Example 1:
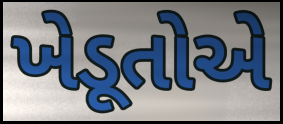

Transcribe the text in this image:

ખેડૂતોએ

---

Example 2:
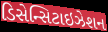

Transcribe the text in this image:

ડિસેન્સિટાઇઝેશન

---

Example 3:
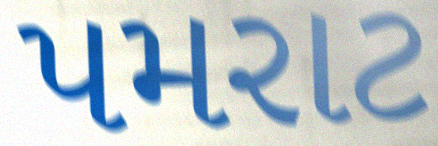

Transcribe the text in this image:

પમરાટ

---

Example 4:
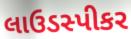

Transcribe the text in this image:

લાઉડસ્પીકર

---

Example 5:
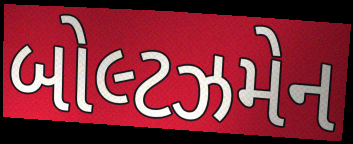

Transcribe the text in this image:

બોલ્ટઝમેન